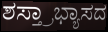
ಶಸ್ತ್ರಾಭ್ಯಾಸದ